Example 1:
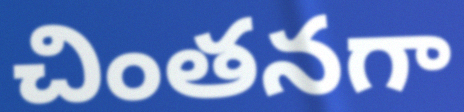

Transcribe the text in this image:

చింతనగా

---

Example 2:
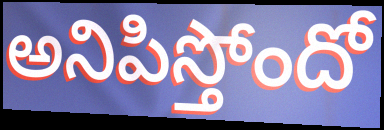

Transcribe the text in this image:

అనిపిస్తోందో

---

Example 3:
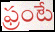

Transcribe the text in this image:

ఫ్రంటే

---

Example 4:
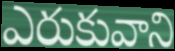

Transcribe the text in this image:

ఎరుకువాని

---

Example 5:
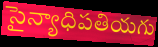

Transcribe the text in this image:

సైన్యాధిపతియగు